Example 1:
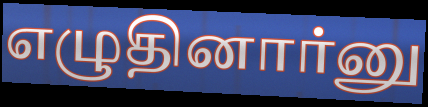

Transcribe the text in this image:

எழுதினார்னு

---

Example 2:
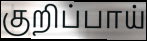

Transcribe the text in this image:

குறிப்பாய்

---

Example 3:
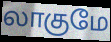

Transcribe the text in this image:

லாகுமே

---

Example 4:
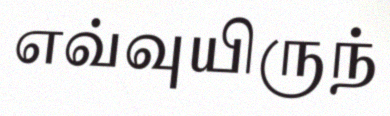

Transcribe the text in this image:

எவ்வுயிருந்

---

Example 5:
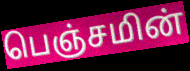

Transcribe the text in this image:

பெஞ்சமின்